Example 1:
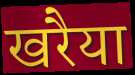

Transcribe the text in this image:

खरैया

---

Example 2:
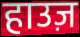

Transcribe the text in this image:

हाउज़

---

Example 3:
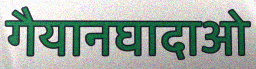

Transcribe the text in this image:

गैयानघादाओ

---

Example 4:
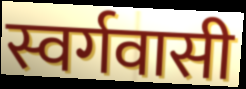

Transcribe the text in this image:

स्‍वर्गवासी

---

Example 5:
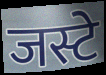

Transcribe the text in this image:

जस्टे